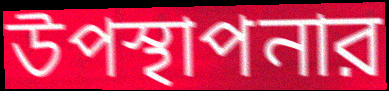
উপস্থাপনার